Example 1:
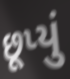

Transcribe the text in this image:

છૂપ્યું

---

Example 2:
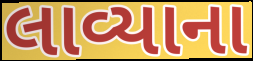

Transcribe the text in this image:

લાવ્યાના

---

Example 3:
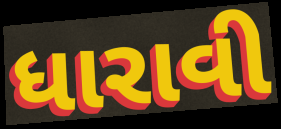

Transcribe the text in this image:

ધારાવી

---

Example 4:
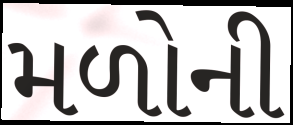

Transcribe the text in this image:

મળોની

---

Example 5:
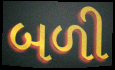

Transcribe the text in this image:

બળી